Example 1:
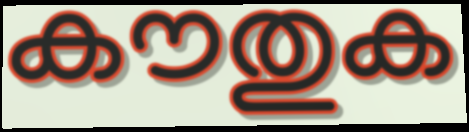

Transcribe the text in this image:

കൗതുക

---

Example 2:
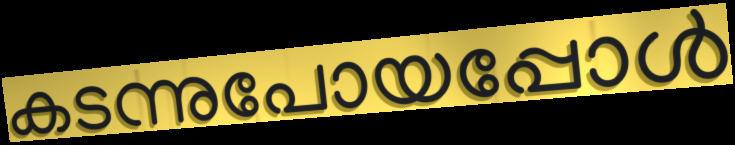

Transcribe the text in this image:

കടന്നുപോയപ്പോൾ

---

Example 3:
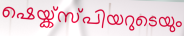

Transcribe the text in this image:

ഷെയ്ക്സ്പിയറുടെയും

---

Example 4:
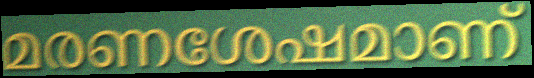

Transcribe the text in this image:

മരണശേഷമാണ്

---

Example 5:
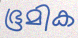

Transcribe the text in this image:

ഭൂമിക